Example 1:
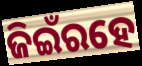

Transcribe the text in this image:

ଜିଇଁରହେ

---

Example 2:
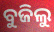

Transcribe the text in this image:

ବୁଜିଲୁ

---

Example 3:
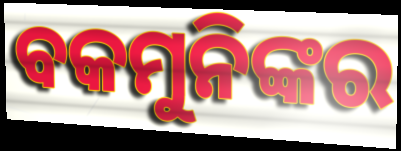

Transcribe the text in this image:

ବକମୁନିଙ୍କର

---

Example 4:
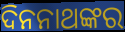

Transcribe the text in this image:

ଦିନନାଥଙ୍କର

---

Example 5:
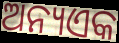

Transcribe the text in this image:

ଅନ୍ୟଏକ